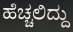
ಹೆಚ್ಚಲಿದ್ದು